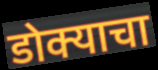
डोक्याचा